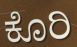
ಕೊರಿ